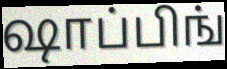
ஷாப்பிங்